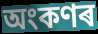
অংকণৰ